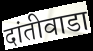
दांतीवाडा